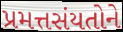
પ્રમત્તસંયતોને